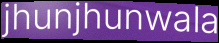
jhunjhunwala